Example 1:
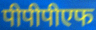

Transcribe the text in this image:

पीपीपीएफ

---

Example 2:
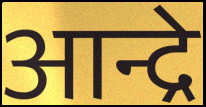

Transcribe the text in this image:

आन्द्रे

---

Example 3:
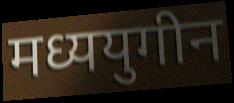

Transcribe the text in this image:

मध्ययुगीन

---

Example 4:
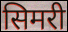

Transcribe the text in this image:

सिमरी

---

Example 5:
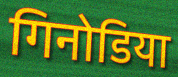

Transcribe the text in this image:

गिनोडिया